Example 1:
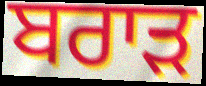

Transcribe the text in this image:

ਬਰਾੜ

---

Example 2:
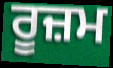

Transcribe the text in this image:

ਰੂਜ਼ਮ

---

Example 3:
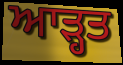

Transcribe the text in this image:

ਆੜ੍ਹਤ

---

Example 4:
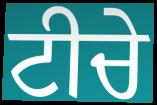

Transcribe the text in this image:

ਟੀਚੇ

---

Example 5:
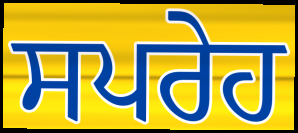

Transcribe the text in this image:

ਸਪਰੇਹ